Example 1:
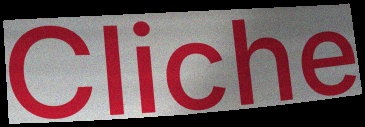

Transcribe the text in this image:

Cliche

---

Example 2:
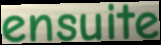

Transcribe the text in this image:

ensuite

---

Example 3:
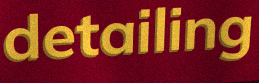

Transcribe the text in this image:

detailing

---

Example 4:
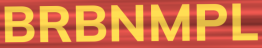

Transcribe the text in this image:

BRBNMPL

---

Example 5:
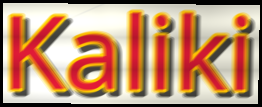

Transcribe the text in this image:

Kaliki